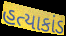
હત્યાકાંડ